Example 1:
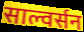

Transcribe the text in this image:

साल्वर्सन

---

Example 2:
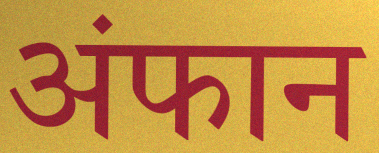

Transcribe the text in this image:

अंफान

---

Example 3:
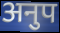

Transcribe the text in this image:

अनुप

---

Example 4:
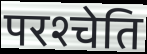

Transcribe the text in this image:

परश्चेति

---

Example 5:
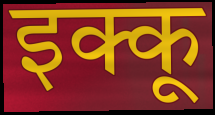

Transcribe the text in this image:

इक्कू